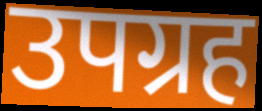
उपग्रह